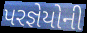
પરજ્ઞેયોની